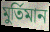
মুর্তিমান